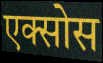
एक्सोस